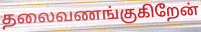
தலைவணங்குகிறேன்